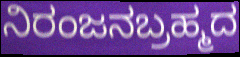
ನಿರಂಜನಬ್ರಹ್ಮದ